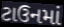
ટાઉનમાં